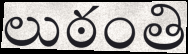
లుఠంతి